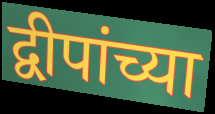
द्वीपांच्या